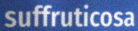
suffruticosa